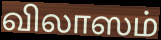
விலாஸம்